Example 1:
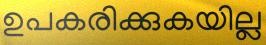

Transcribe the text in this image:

ഉപകരിക്കുകയില്ല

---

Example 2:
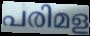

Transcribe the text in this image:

പരിമള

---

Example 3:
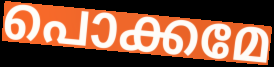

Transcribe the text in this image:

പൊക്കമേ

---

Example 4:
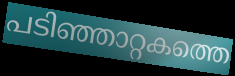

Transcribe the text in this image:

പടിഞ്ഞാറ്റകത്തെ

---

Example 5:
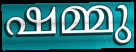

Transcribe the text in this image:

ഷമ്മു